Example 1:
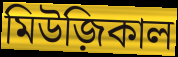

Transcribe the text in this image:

মিউজ়িকাল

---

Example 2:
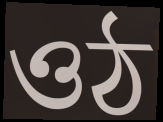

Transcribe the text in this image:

ওঠ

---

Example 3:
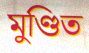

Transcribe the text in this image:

মুণ্ডিত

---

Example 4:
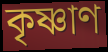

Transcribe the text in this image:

কৃষ্ণাণ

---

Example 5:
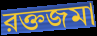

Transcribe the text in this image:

রক্তজমা